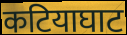
कटियाघाट